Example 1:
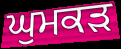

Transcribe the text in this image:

ਘੁਮਕੜ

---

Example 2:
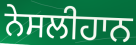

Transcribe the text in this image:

ਨੇਸਲੀਹਾਨ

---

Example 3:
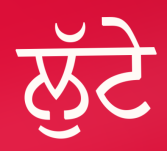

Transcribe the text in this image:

ਲੁੱਟੇ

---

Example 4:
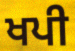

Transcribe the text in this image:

ਖਪੀ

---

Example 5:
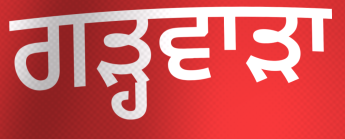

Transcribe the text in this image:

ਗੜ੍ਹਵਾੜਾ